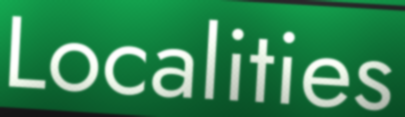
Localities